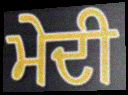
ਮੇਦੀ